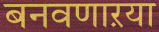
बनवणाऱया